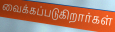
வைக்கப்படுகிறார்கள்